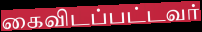
கைவிடப்பட்டவர்